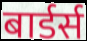
बार्डर्स